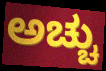
ಅಚ್ಚು